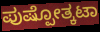
ಪುಷ್ಪೋತ್ಕಟಾ